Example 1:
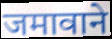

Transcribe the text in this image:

जमावाने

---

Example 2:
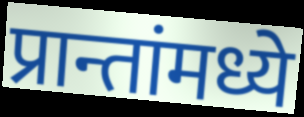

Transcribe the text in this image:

प्रान्तांमध्ये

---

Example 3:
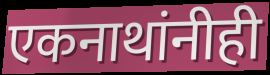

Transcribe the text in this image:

एकनाथांनीही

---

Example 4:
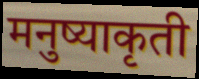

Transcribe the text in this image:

मनुष्याकृती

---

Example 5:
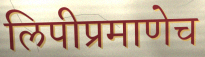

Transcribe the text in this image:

लिपीप्रमाणेच